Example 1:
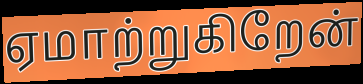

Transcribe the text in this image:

ஏமாற்றுகிறேன்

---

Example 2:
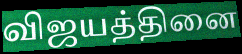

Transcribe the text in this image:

விஜயத்தினை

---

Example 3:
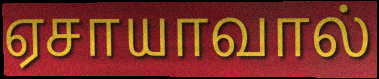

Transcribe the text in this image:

ஏசாயாவால்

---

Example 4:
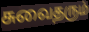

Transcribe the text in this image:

சுவைதரும்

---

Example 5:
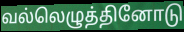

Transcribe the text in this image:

வல்லெழுத்தினோடு